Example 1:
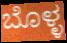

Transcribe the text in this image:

ಬೊಳ್ಳ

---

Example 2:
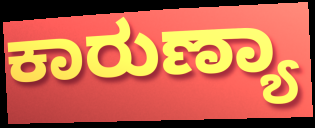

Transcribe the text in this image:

ಕಾರುಣ್ಯಾ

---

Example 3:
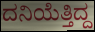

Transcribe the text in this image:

ದನಿಯೆತ್ತಿದ್ದ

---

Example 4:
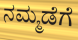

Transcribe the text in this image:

ನಮ್ಮಡೆಗೆ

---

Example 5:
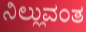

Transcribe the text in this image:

ನಿಲ್ಲುವಂತ